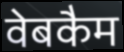
वेबकैम